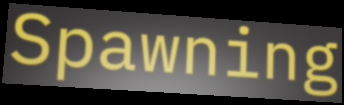
Spawning